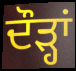
ਦੌੜ੍ਹਾਂ